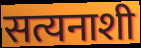
सत्यनाशी